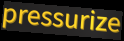
pressurize